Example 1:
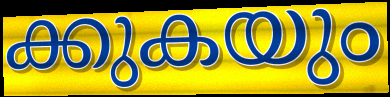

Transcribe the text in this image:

ക്കുകയും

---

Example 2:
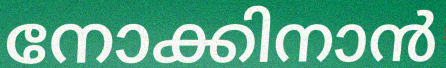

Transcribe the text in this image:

നോക്കിനാൻ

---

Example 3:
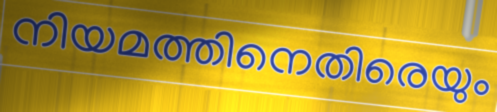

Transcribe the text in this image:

നിയമത്തിനെതിരെയും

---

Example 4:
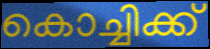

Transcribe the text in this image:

കൊച്ചിക്ക്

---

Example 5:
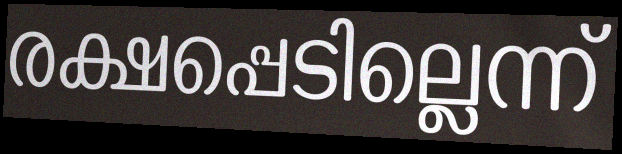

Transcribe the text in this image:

രക്ഷപ്പെടില്ലെന്ന്